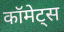
कॉमेट्स